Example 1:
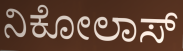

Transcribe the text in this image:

ನಿಕೋಲಾಸ್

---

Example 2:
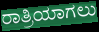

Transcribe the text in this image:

ರಾತ್ರಿಯಾಗಲು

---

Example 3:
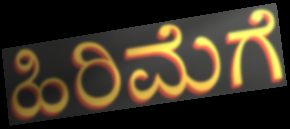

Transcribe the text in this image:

ಹಿರಿಮೆಗೆ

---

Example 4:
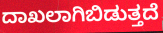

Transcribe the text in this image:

ದಾಖಲಾಗಿಬಿಡುತ್ತದೆ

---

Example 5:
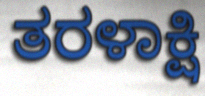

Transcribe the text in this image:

ತರಳಾಕ್ಷಿ